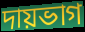
দায়ভাগ